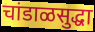
चांडाळसुद्धा